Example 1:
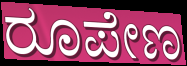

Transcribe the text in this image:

ರೂಪೇಣ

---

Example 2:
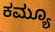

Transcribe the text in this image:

ಕಮ್ಯೂ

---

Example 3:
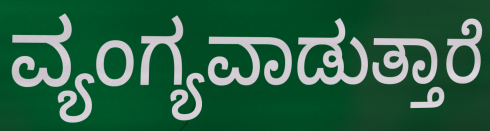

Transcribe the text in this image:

ವ್ಯಂಗ್ಯವಾಡುತ್ತಾರೆ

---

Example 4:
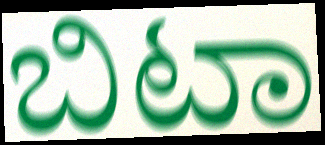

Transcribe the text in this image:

ಬಿಟಾ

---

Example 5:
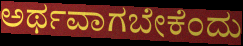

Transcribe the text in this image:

ಅರ್ಥವಾಗಬೇಕೆಂದು